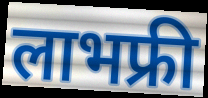
लाभफ्री